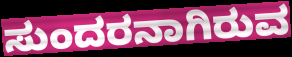
ಸುಂದರನಾಗಿರುವ